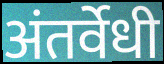
अंतर्वेधी